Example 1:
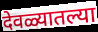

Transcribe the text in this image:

देवळ्यातल्या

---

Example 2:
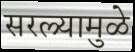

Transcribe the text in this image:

सरल्यामुळे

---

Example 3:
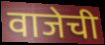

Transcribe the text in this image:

वाजेची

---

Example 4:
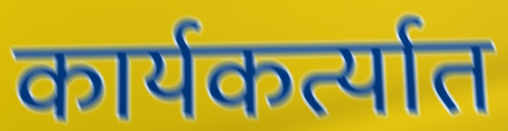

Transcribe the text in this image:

कार्यकर्त्यात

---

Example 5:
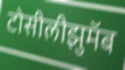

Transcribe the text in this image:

टोसीलीझुमॅब